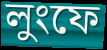
লুংফে